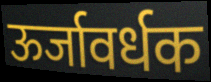
ऊर्जावर्धक